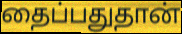
தைப்பதுதான்